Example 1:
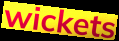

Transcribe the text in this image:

wickets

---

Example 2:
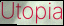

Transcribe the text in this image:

Utopia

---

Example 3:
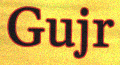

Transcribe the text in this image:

Gujr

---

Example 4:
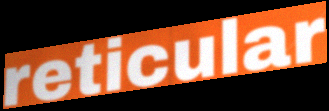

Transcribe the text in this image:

reticular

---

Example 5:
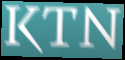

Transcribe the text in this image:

KTN